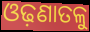
ଓଢ଼ଣାତଳୁ